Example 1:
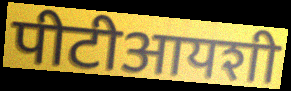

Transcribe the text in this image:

पीटीआयशी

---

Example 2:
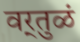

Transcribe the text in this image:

वर्तुळं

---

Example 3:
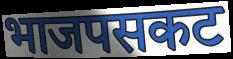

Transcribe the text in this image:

भाजपसकट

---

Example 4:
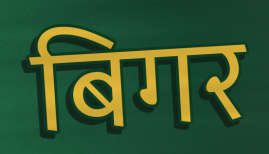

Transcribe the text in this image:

बिगर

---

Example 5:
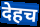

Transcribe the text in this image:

देहच